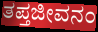
ತಪ್ತಜೀವನಂ